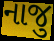
નાજુ